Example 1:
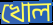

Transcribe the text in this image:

খোল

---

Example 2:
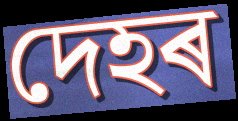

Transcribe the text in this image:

দেহৰ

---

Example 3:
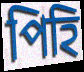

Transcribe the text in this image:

পিহি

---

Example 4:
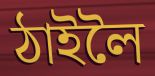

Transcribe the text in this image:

ঠাইলৈ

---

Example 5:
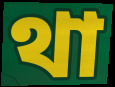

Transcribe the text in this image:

থা